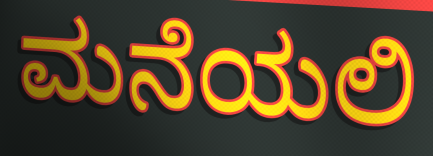
ಮನೆಯಲಿ